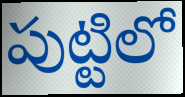
పుట్టిలో